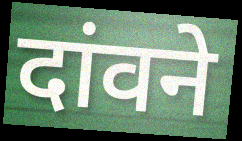
दांवने